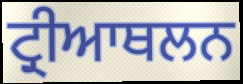
ਟ੍ਰੀਆਥਲਨ